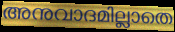
അനുവാദമില്ലാതെ